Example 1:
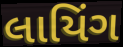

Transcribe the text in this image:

લાયિંગ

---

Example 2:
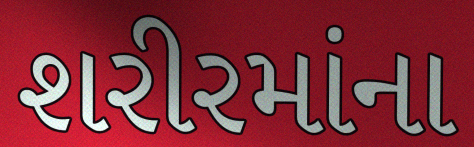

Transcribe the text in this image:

શરીરમાંના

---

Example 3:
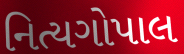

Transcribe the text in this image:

નિત્યગોપાલ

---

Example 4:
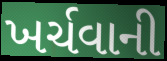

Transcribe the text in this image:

ખર્ચવાની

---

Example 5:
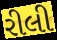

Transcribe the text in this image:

રીલી